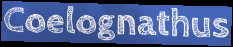
Coelognathus